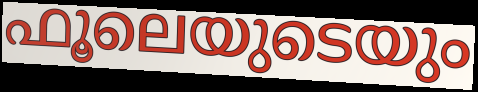
ഫൂലെയുടെയും